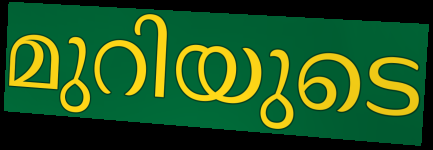
മുറിയുടെ